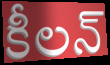
కీలన్